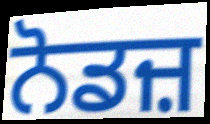
ਨੋਡਜ਼